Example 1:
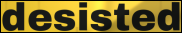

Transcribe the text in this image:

desisted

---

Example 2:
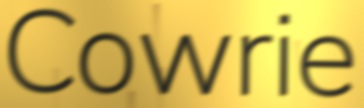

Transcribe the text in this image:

Cowrie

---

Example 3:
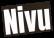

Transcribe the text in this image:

Nivu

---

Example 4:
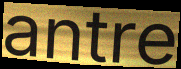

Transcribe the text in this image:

antre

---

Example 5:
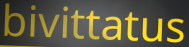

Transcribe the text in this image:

bivittatus